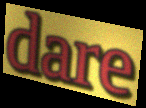
dare